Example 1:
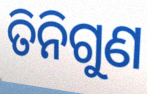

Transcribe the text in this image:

ତିନିଗୁଣ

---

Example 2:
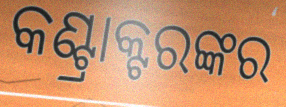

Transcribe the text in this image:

କଣ୍ଟ୍ରାକ୍ଟରଙ୍କର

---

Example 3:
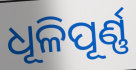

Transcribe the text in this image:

ଧୂଳିପୂର୍ଣ୍ଣ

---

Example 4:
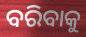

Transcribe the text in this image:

ବରିବାକୁ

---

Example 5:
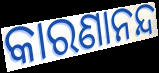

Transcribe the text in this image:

କାରଣାନନ୍ଦ